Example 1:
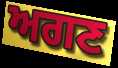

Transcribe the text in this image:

ਅਗਣ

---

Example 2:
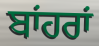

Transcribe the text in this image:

ਬਾਂਹਰਾਂ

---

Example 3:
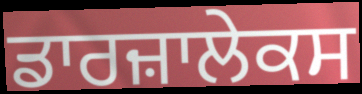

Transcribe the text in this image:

ਡਾਰਜ਼ਾਲੇਕਸ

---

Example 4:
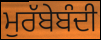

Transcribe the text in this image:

ਮੁਰੱਬੇਬੰਦੀ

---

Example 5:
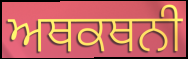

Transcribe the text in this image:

ਅਥਕਥਨੀ